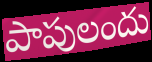
పాపులందు